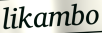
likambo